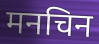
मनचिन